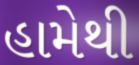
હામેથી